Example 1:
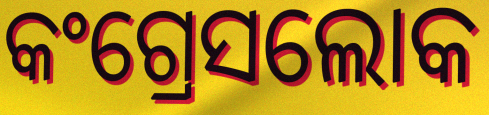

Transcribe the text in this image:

କଂଗ୍ରେସଲୋକ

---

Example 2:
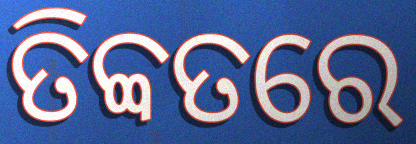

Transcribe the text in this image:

ତିବ୍ବତରେ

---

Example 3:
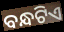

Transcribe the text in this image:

ବନ୍ଧଟିଏ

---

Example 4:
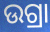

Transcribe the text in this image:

ଉଗ୍ରା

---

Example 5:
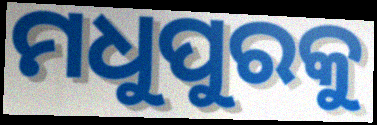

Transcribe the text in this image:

ମଧୁପୁରକୁ